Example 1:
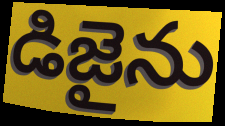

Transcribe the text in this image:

డిజైను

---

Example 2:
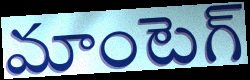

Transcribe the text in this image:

మాంటెగ్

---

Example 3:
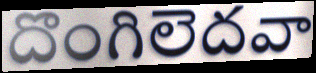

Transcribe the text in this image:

దొంగిలెదవా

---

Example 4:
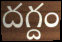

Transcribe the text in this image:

దగ్దం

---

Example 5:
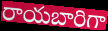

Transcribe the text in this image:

రాయబారిగా